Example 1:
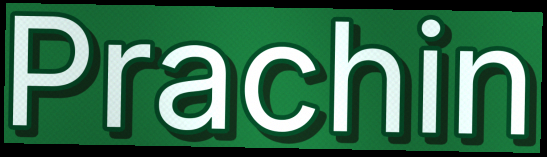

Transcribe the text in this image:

Prachin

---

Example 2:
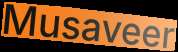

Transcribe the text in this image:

Musaveer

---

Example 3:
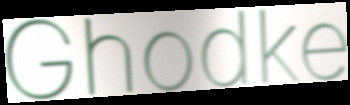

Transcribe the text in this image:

Ghodke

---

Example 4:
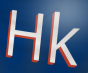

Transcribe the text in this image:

Hk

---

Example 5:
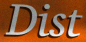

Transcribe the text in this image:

Dist